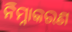
ନିମ୍ନାକରଣ